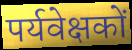
पर्यवेक्षकों